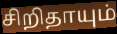
சிறிதாயும்